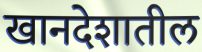
खानदेशातील